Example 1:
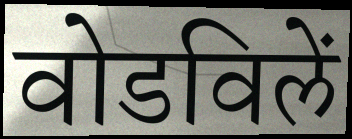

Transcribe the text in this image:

वोडविलें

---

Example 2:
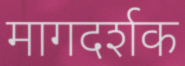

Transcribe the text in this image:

मागदर्शक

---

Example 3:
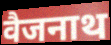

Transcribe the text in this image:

वैजनाथ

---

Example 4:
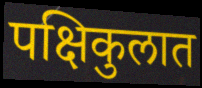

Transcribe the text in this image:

पक्षिकुलात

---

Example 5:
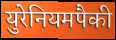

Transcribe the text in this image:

युरेनियमपैकी